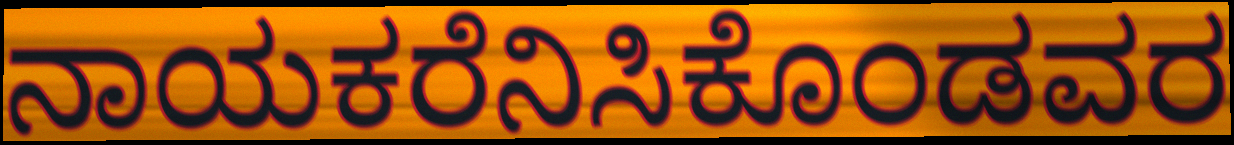
ನಾಯಕರೆನಿಸಿಕೊಂಡವರ